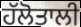
ਹੱਲੋਤਾਲੀ